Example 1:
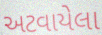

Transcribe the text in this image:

અટવાયેલા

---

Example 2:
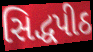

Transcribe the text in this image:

સિદ્ધપીઠ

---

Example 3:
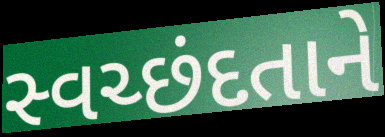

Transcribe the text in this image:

સ્વચ્છંદતાને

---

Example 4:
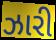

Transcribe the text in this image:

ઝારી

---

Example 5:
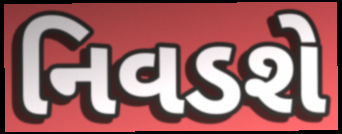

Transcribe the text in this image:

નિવડશે